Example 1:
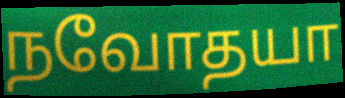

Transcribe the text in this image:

நவோதயா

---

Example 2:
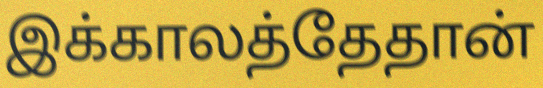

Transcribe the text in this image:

இக்காலத்தேதான்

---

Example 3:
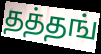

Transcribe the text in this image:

தத்தங்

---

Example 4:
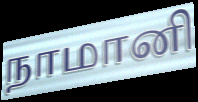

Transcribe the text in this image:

நாமானி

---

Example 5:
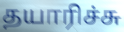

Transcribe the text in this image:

தயாரிச்சு